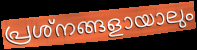
പ്രശ്‌നങ്ങളായാലും